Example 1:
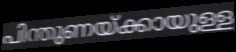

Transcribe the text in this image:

പിന്തുണയ്ക്കായുള്ള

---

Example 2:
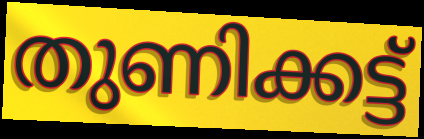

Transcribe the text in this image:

തുണിക്കട്ട്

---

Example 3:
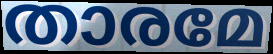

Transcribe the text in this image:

താരമേ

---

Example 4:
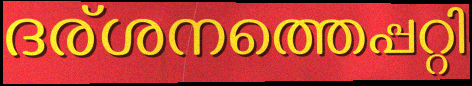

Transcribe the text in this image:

ദര്ശനത്തെപ്പറ്റി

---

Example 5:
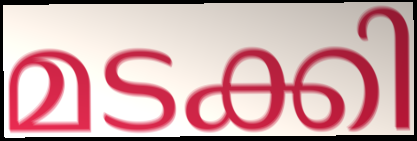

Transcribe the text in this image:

മടക്കി